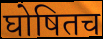
घोषितच